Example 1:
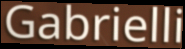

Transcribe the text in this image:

Gabrielli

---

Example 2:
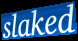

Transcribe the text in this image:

slaked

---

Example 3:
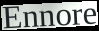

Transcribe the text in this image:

Ennore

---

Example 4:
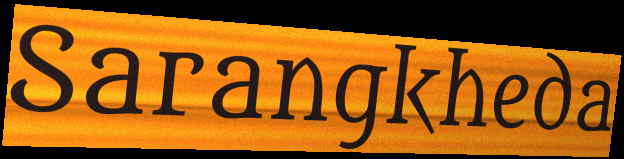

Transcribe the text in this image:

Sarangkheda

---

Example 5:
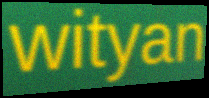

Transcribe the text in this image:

wityan